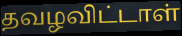
தவழவிட்டாள்